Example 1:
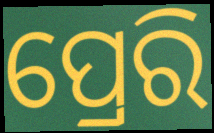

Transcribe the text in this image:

ପ୍ରେରି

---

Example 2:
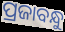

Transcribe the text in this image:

ପ୍ରଜାବନ୍ଧୁ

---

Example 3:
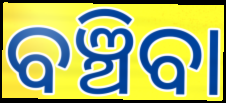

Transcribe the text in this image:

ବଞ୍ଚିବା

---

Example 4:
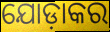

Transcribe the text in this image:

ଯୋଡ଼ାକର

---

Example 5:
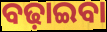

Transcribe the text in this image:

ବଢ଼ାଇବା